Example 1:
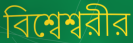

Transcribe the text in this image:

বিশ্বেশ্বরীর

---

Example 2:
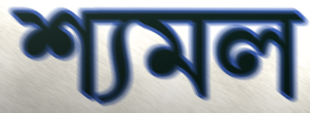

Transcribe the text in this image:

শ্যমল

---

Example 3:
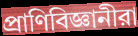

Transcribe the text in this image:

প্রাণিবিজ্ঞানীরা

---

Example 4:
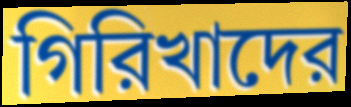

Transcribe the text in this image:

গিরিখাদের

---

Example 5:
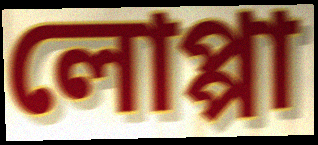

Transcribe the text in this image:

লোপ্পা